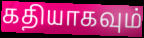
கதியாகவும்